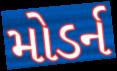
મોડર્ન